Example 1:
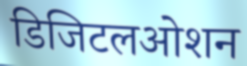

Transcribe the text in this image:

डिजिटलओशन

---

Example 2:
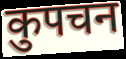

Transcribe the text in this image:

कुपचन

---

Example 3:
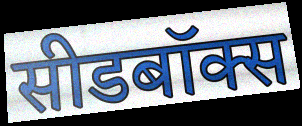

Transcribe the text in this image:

सीडबॉक्स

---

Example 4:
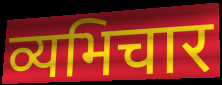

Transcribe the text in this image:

व्यभिचार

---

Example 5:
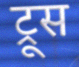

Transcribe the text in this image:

ट्रूस